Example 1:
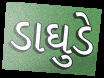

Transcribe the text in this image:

ડાઘુડે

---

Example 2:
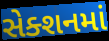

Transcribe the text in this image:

સેક્શનમાં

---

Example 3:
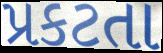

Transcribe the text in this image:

પ્રકટતા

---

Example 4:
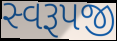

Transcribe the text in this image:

સ્વરૂપજી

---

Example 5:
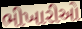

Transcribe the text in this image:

ભીખારીઓ